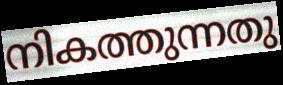
നികത്തുന്നതു